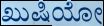
ಖುಷಿಯೋ